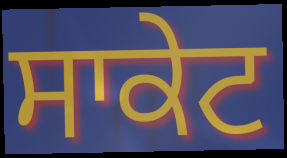
ਸਾਕੇਟ